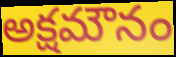
అక్షమౌనం